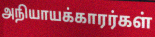
அநியாயக்காரர்கள்